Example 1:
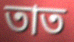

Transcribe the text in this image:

তাত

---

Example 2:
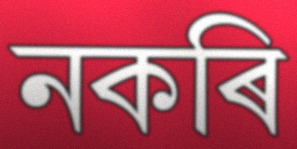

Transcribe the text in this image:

নকৰি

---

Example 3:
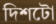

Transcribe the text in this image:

দিশটো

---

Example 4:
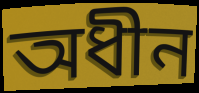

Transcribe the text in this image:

অধীন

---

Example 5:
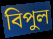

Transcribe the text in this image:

বিপুল